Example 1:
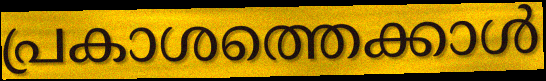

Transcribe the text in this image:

പ്രകാശത്തെക്കാൾ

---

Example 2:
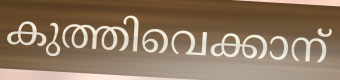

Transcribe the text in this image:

കുത്തിവെക്കാന്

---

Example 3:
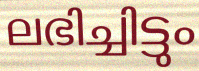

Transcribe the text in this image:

ലഭിച്ചിട്ടും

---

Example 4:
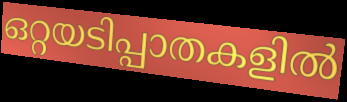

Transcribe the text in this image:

ഒറ്റയടിപ്പാതകളിൽ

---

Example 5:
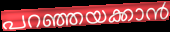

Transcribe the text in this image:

പറഞ്ഞയക്കാൻ